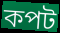
কপট